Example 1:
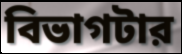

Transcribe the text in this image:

বিভাগটার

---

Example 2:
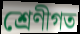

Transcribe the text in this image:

শ্রেণীগত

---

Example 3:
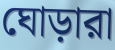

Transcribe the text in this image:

ঘোড়ারা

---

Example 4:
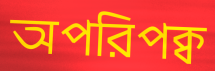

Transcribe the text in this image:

অপরিপক্ব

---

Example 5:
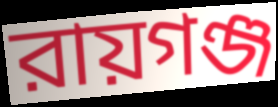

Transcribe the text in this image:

রায়গঞ্জ